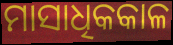
ମାସାଧିକକାଳ